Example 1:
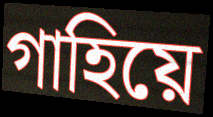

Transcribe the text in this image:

গাহিয়ে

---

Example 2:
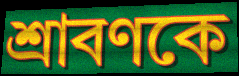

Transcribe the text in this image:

শ্রাবণকে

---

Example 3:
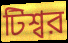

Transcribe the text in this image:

টিশ্বর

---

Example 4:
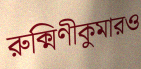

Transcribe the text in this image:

রুক্মিণীকুমারও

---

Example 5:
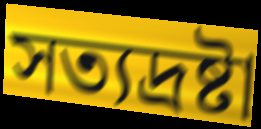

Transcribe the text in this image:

সত্যদ্রষ্টা